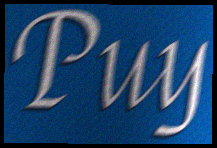
Puy